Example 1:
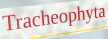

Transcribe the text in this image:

Tracheophyta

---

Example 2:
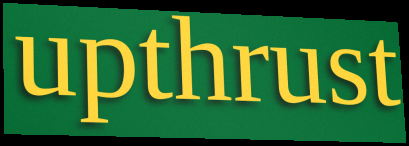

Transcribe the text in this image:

upthrust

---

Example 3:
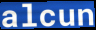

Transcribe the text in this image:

alcun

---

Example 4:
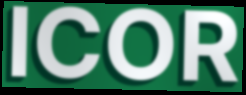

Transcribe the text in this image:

ICOR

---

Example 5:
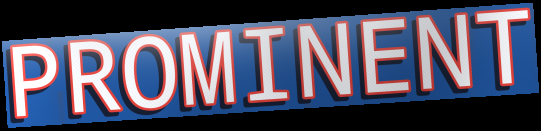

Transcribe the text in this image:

PROMINENT